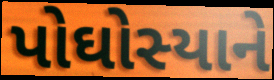
પોઘોસ્યાને